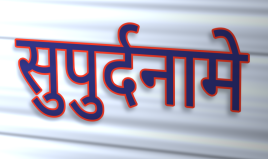
सुपुर्दनामे